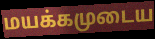
மயக்கமுடைய